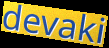
devaki